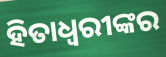
ହିତାଧ୍ଵରୀଙ୍କର